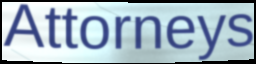
Attorneys